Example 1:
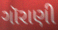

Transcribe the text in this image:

ગૉરાણી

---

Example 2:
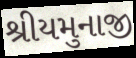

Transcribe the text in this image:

શ્રીયમુનાજી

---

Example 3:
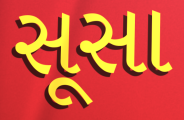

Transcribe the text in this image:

સૂસા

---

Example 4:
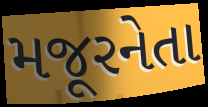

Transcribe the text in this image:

મજૂરનેતા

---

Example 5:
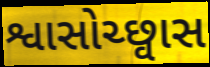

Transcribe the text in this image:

શ્વાસોચ્છ્વાસ